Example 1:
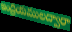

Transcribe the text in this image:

ఇంద్రియములద్వారా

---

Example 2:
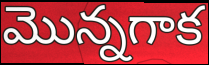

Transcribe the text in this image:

మొన్నగాక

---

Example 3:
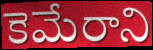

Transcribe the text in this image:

కెమేరాని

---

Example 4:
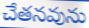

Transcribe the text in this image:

చేతనవును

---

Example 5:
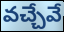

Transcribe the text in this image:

వచ్చేవే